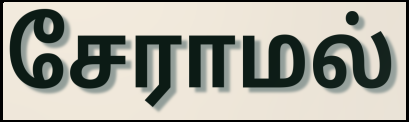
சேராமல்